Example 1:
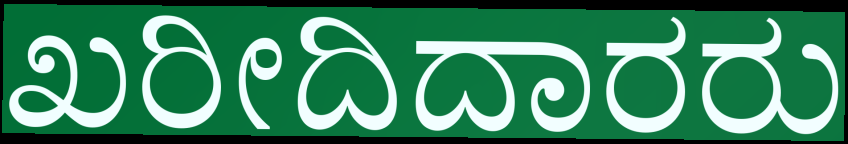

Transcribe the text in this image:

ಖರೀದಿದಾರರು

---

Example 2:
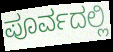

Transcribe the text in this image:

ಪೂರ್ವದಲ್ಲಿ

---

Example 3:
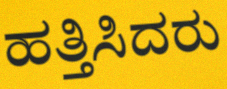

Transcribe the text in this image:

ಹತ್ತಿಸಿದರು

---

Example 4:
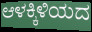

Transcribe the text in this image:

ಆಳಕ್ಕಿಳಿಯದ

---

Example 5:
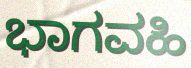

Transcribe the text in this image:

ಭಾಗವಹಿ